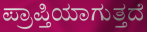
ಪ್ರಾಪ್ತಿಯಾಗುತ್ತದೆ